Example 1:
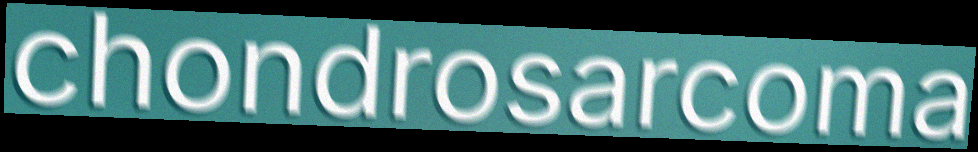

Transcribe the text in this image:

chondrosarcoma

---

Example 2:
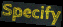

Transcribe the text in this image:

Specify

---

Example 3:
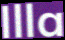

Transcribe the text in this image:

Illa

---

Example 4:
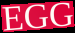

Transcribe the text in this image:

EGG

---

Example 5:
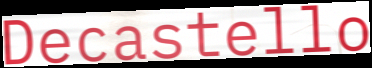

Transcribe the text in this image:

Decastello